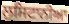
ਲੁਸਿਟਾਨੀਆ